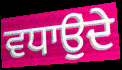
ਵਧਾਉੁਂਦੇ